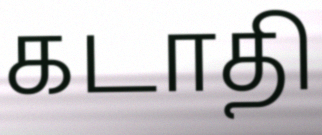
கடாதி